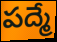
పద్మే